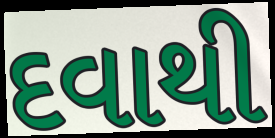
દવાથી